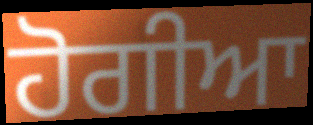
ਹੋਗੀਆ